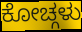
ಕೋಚ್ಗಳು